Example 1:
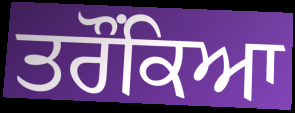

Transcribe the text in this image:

ਤਰੌਂਕਿਆ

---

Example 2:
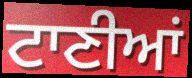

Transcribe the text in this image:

ਟਾਣੀਆਂ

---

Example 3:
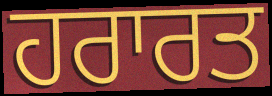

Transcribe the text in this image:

ਹਰਾਰਤ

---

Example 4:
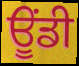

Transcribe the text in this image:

ਊਂਡੀ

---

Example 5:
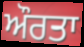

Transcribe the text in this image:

ਔਰਤਾ